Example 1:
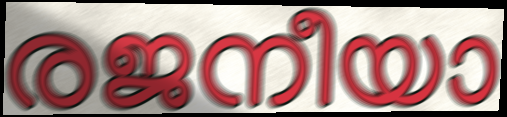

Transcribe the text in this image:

രജനീയാ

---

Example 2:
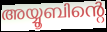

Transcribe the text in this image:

അയ്യൂബിന്റെ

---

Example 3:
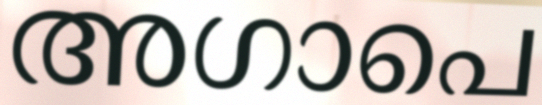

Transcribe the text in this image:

അഗാപെ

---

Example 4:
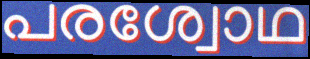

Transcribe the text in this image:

പരശ്വോഥ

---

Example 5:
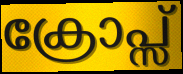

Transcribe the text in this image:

ക്രോപ്സ്